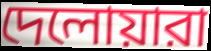
দেলোয়ারা